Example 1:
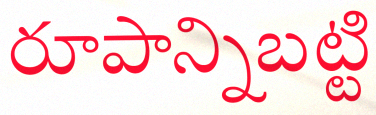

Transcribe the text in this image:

రూపాన్నిబట్టి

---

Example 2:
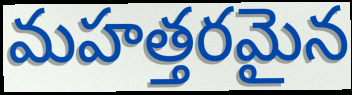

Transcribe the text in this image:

మహత్తరమైన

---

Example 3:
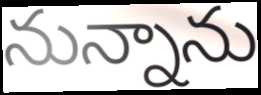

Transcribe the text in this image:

నున్నాను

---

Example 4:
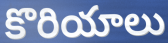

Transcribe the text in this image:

కొరియాలు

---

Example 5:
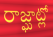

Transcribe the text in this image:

రాజ్ఘాట్లో